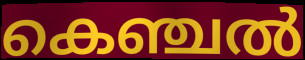
കെഞ്ചൽ